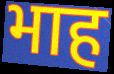
भाह